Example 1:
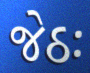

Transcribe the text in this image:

જેઠઃ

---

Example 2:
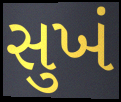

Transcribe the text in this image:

સુખં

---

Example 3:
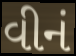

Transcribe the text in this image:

વીનં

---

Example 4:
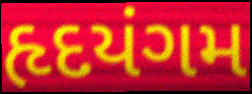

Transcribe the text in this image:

હૃદયંગમ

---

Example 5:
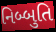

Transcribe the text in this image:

નિબ્બુતિ